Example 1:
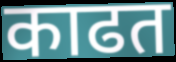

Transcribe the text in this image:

काढत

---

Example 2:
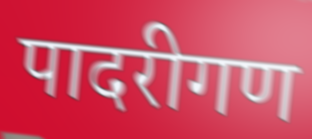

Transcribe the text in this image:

पादरीगण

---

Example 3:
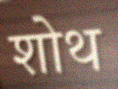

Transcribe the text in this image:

शोथ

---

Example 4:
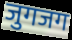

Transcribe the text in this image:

जुगजग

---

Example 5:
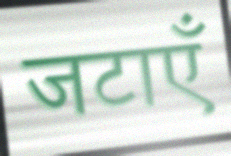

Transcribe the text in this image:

जटाएँ